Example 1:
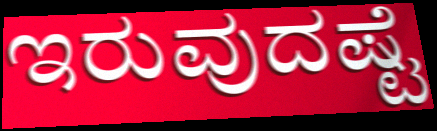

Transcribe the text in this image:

ಇರುವುದಷ್ಟೆ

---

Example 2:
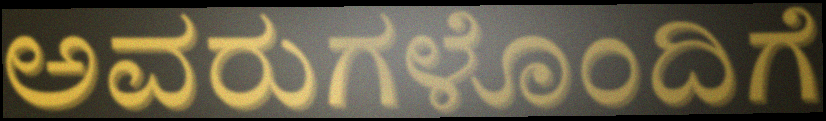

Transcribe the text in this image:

ಅವರುಗಳೊಂದಿಗೆ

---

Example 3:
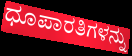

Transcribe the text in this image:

ಧೂಪಾರತಿಗಳನ್ನು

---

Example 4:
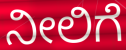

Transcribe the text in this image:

ನೀಲಿಗೆ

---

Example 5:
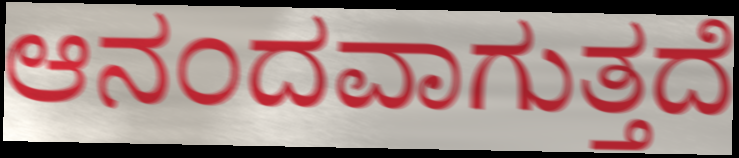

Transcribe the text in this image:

ಆನಂದವಾಗುತ್ತದೆ